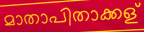
മാതാപിതാക്കള്